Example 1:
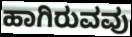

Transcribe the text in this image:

ಹಾಗಿರುವವು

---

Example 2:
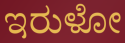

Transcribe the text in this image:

ಇರುಳೋ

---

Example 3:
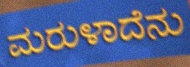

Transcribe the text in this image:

ಮರುಳಾದೆನು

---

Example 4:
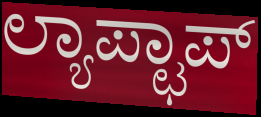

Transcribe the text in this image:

ಲ್ಯಾಪ್ಟಾಪ್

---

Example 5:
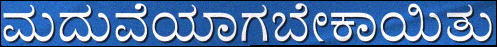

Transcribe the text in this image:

ಮದುವೆಯಾಗಬೇಕಾಯಿತು